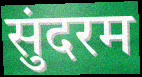
सुंदरम